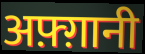
अफ़्ग़ानी